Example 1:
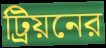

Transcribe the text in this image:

ট্রিয়নের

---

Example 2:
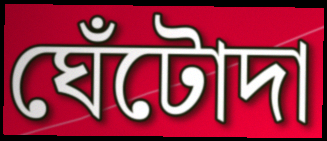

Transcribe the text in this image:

ঘেঁটোদা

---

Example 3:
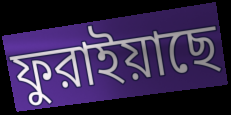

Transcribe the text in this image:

ফুরাইয়াছে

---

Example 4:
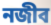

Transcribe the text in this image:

নজীব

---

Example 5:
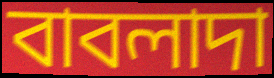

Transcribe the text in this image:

বাবলাদা